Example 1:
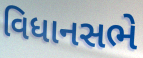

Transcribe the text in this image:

વિધાનસભે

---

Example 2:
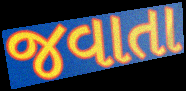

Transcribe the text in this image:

જવાતા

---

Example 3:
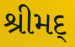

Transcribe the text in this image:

શ્રીમદ્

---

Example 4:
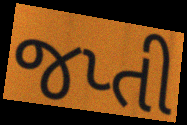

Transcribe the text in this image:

જપ્તી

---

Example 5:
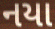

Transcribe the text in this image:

નયા